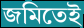
জমিতেই